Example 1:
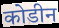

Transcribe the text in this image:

कोडीन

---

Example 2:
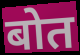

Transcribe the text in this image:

बोत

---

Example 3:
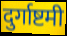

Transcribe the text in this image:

दुर्गाष्टमी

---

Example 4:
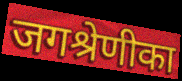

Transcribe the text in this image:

जगश्रेणीका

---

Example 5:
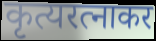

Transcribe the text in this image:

कृत्यरत्नाकर